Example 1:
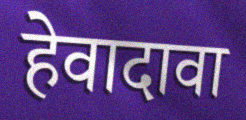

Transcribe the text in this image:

हेवादावा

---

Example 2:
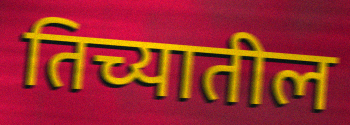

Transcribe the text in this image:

तिच्यातील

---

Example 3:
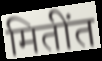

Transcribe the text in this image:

मितींत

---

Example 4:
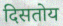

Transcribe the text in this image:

दिसतोय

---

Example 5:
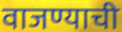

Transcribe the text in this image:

वाजण्याची